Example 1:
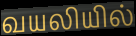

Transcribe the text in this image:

வயலியில்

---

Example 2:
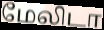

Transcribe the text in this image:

மேலிடா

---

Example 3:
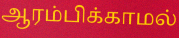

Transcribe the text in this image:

ஆரம்பிக்காமல்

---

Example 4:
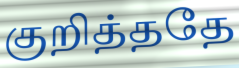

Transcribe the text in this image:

குறித்ததே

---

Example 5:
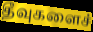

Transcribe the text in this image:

தீவுகளைச்